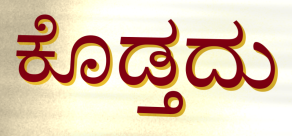
ಕೊಡ್ತದು